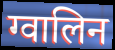
ग्वालिन